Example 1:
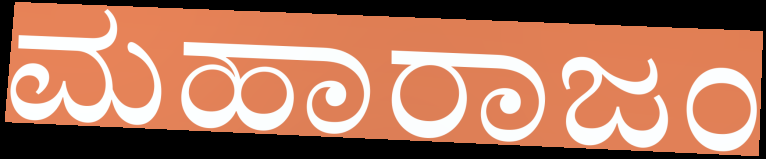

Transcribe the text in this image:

ಮಹಾರಾಜಂ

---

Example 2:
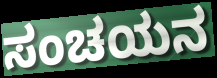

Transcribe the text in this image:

ಸಂಚಯನ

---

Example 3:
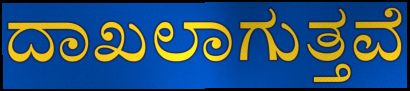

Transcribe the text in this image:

ದಾಖಲಾಗುತ್ತವೆ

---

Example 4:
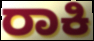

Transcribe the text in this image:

ರಾಕಿ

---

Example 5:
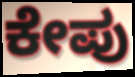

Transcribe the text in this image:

ಕೇಪು